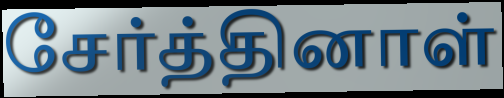
சேர்த்தினாள்